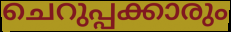
ചെറുപ്പക്കാരും